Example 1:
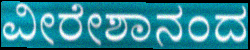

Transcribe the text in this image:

ವೀರೇಶಾನಂದ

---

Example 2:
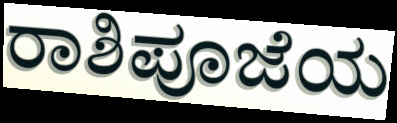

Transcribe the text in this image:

ರಾಶಿಪೂಜೆಯ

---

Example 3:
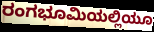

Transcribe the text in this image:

ರಂಗಭೂಮಿಯಲ್ಲಿಯೂ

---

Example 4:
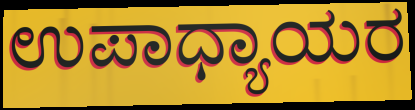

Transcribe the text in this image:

ಉಪಾಧ್ಯಾಯರ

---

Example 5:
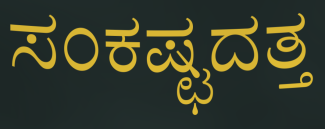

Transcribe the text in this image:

ಸಂಕಷ್ಟದತ್ತ